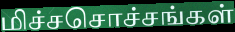
மிச்சசொச்சங்கள்